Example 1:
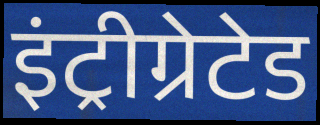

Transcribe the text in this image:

इंट्रीग्रेटेड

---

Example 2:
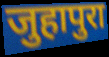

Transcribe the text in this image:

जुहापुरा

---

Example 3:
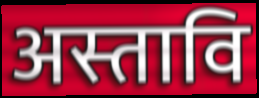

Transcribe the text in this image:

अस्तावि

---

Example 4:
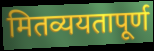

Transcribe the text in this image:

मितव्ययतापूर्ण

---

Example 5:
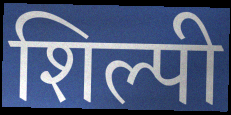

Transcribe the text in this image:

शिल्पी